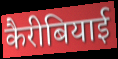
कैरीबियाई